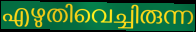
എഴുതിവെച്ചിരുന്ന